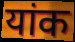
यांक